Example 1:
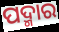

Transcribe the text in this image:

ପଦ୍ମାର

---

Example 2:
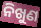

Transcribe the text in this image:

ନିଖୁଣ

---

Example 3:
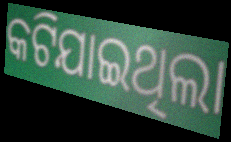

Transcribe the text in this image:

କଟିଯାଇଥିଲା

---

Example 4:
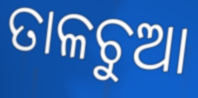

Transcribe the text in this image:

ତାଳଚୁଆ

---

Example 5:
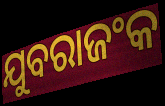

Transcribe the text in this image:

ଯୁବରାଜଂକ